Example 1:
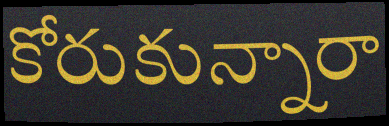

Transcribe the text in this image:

కోరుకున్నారా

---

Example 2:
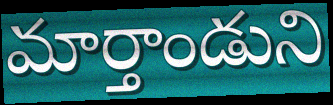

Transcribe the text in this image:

మార్తాండుని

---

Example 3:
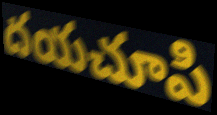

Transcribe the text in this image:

దయచూపి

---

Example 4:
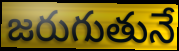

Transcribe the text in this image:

జరుగుతునే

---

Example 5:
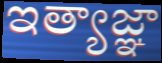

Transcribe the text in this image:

ఇత్యాజ్ఞా